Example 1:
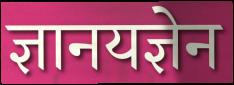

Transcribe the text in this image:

ज्ञानयज्ञेन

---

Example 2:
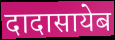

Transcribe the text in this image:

दादासायेब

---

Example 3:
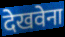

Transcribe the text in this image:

देखवेना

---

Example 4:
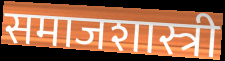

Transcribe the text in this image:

समाजशास्त्री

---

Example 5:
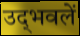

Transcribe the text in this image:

उद्‍भवलें